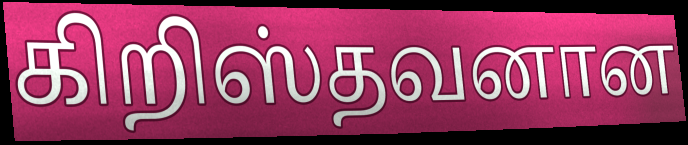
கிறிஸ்தவனான